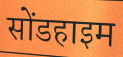
सोंडहाइम